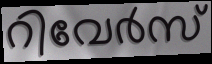
റിവേർസ്